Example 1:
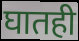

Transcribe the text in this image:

घातही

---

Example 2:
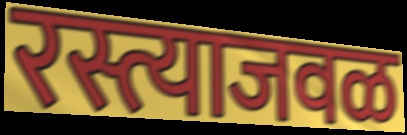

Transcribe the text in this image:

रस्त्याजवळ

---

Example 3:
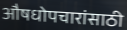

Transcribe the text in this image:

औषधोपचारांसाठी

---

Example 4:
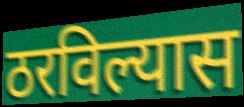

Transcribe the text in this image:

ठरविल्यास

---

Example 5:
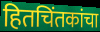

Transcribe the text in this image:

हितचिंतकांचा